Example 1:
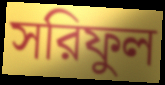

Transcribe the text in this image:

সরিফুল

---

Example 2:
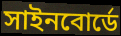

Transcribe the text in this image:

সাইনবোর্ডে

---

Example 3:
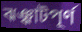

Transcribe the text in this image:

ঝঞ্ঝাটপূর্ণ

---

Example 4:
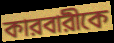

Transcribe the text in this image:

কারবারীকে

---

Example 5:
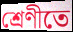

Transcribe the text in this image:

শ্রেণীতে